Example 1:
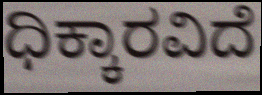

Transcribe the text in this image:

ಧಿಕ್ಕಾರವಿದೆ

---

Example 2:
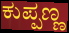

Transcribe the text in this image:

ಕುಪ್ಪಣ್ಣ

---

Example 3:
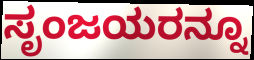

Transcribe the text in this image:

ಸೃಂಜಯರನ್ನೂ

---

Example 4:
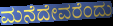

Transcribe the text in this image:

ಮನೆದೇವರೆಂದು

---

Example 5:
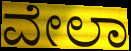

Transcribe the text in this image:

ವೇಲಾ